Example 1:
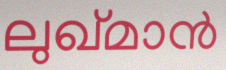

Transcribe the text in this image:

ലുഖ്മാൻ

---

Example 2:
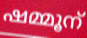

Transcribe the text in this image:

ഷമ്മൂന്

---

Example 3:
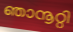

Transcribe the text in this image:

ഞാനൂറ്റി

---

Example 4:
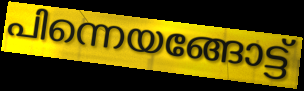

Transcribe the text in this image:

പിന്നെയങ്ങോട്ട്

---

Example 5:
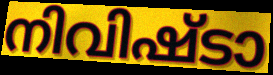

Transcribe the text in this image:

നിവിഷ്ടാ